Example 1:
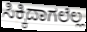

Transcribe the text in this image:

ಸಿಕ್ಕಿದಾಗಲೆಲ್ಲ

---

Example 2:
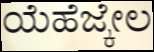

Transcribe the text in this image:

ಯೆಹೆಜ್ಕೇಲ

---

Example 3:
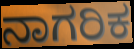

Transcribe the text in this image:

ನಾಗರಿಕ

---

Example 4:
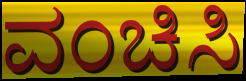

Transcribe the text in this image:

ವಂಚಿಸಿ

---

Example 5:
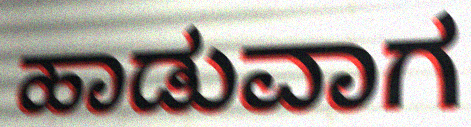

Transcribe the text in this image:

ಹಾಡುವಾಗ